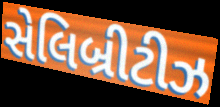
સેલિબ્રીટીઝ